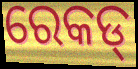
ରେକଡ୍